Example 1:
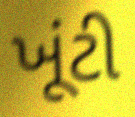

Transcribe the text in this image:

ખૂંટી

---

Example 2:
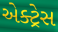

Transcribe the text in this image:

એક્ટ્રેસ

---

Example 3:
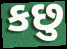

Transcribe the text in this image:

કછુ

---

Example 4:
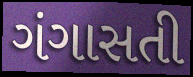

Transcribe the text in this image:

ગંગાસતી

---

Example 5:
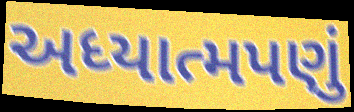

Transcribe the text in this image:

અધ્યાત્મપણું